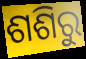
ଶଶିରୁ